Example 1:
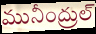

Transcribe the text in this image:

మునీంద్రుల్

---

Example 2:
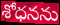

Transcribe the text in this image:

శోధనను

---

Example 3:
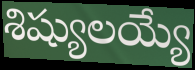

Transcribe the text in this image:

శిష్యులయ్యే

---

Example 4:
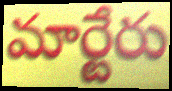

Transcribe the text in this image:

మార్టేరు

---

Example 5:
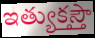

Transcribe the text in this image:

ఇత్యుక్తస్తౌ